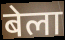
बेला